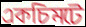
একচিমটে